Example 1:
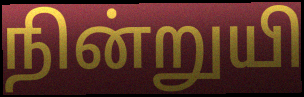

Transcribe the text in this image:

நின்றுயி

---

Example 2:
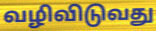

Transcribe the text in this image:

வழிவிடுவது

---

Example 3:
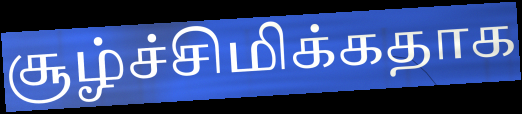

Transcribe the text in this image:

சூழ்ச்சிமிக்கதாக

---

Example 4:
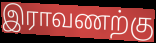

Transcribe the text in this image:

இராவணற்கு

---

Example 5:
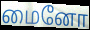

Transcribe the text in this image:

மைனோ